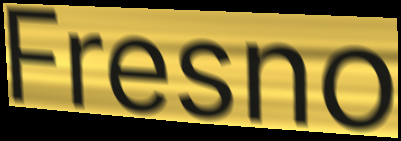
Fresno